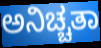
ಅನಿಚ್ಚತಾ